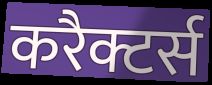
करैक्टर्स